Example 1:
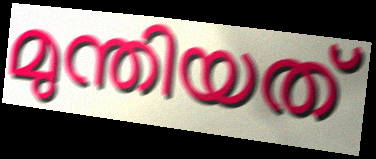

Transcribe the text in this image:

മുന്തിയത്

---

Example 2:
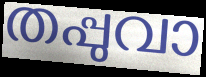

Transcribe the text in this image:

തപ്പുവാ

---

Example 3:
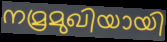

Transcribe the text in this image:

നമ്രമുഖിയായി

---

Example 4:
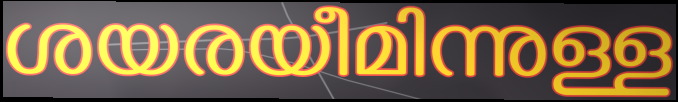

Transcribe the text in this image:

ശയരയീമിന്നുള്ള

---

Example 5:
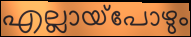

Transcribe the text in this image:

എല്ലായ്‌പോഴും